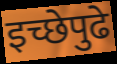
इच्छेपुढे